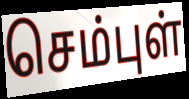
செம்புள்